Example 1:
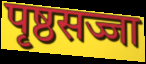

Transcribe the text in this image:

पृष्ठसज्जा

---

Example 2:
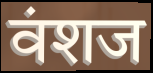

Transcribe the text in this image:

वंशज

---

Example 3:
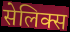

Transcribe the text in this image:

सेलिक्स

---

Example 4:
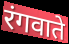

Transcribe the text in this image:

रंगवाते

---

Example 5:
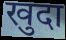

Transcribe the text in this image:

खुदा